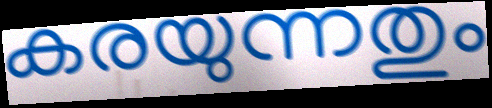
കരയുന്നതും